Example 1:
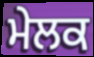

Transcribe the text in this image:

ਮੇਲਕ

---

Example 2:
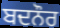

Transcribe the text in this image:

ਬਦਨੌਰ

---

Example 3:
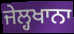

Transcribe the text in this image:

ਜੇਲ੍ਹਖਾਨਾ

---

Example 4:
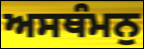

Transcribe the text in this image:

ਅਸਥੰਮਨੁ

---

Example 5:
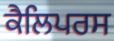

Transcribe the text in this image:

ਕੈਲਿਪਰਸ